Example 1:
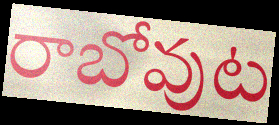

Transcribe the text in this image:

రాబోవుట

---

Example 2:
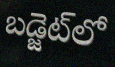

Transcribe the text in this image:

బడ్జెట్‌లో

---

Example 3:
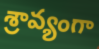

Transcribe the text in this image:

శ్రావ్యంగా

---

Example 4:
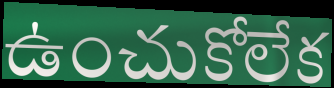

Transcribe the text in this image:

ఉంచుకోలేక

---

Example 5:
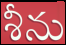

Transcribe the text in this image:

శీను